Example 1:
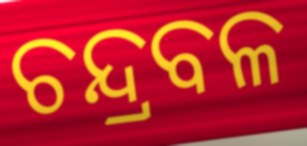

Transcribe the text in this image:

ଚନ୍ଦ୍ରବଳ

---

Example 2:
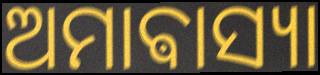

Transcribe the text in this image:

ଅମାଵାସ୍ୟା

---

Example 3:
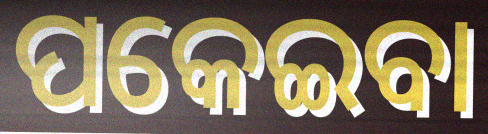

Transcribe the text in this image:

ପକେଇବା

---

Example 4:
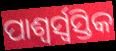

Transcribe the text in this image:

ପାଶ୍ୱର୍ସ୍ୱସ୍ତିକ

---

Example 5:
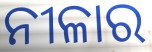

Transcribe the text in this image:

ନୀଳାର